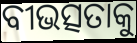
ବୀଭତ୍ସତାକୁ